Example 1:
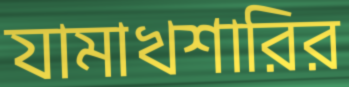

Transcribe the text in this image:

যামাখশারির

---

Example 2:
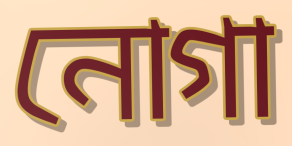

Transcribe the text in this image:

নোগা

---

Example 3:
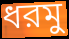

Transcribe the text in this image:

ধরমু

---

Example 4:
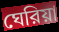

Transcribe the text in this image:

ঘেরিয়া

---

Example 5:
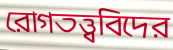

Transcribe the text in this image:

রোগতত্ত্ববিদের